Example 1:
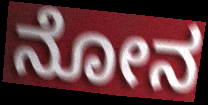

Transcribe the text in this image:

ನೋನ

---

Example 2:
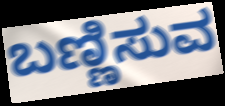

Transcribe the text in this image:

ಬಣ್ಣಿಸುವ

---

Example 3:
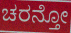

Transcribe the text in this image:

ಚರನ್ತೋ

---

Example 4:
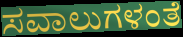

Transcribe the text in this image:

ಸವಾಲುಗಳಂತೆ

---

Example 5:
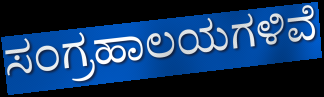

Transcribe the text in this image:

ಸಂಗ್ರಹಾಲಯಗಳಿವೆ